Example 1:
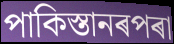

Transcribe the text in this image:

পাকিস্তানৰপৰা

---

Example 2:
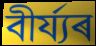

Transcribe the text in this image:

বীৰ্য্যৰ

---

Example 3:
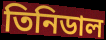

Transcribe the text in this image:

তিনিডাল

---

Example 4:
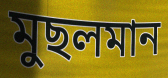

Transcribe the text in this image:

মুছলমান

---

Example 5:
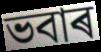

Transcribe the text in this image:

ভবাৰ